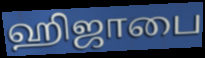
ஹிஜாபை